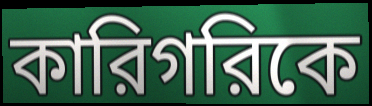
কারিগরিকে